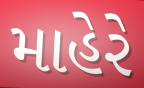
માહેરે